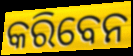
କରିବେନ